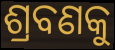
ଶ୍ରବଣକୁ